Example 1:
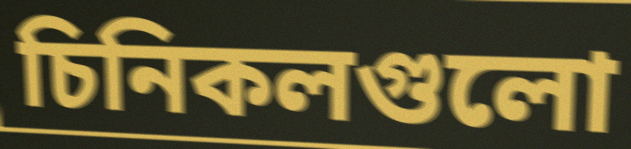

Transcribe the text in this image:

চিনিকলগুলো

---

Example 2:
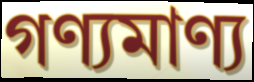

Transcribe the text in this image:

গণ্যমাণ্য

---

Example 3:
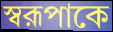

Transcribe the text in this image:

স্বরূপাকে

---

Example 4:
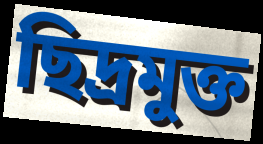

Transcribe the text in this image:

ছিদ্রমুক্ত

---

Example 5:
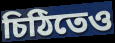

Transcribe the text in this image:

চিঠিতেও